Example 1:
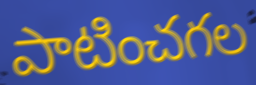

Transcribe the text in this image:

పాటించగల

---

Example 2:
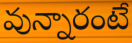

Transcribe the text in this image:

వున్నారంటే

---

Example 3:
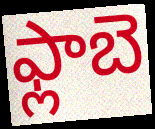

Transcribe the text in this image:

ఫ్లాబె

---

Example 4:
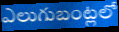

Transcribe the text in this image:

ఎలుగుబంట్లలో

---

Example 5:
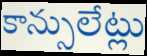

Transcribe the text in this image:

కాన్సులేట్లు